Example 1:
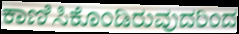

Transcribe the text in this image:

ಕಾಣಿಸಿಕೊಂಡಿರುವುದರಿಂದ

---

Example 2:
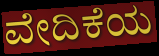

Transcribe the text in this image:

ವೇದಿಕೆಯ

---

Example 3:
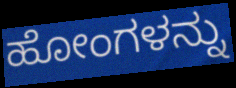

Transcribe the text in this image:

ಹೋಂಗಳನ್ನು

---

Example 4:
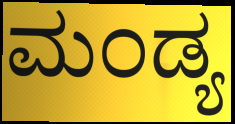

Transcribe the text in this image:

ಮಂಡ್ಯ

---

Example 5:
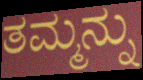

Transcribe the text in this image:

ತಮ್ಮನ್ನು